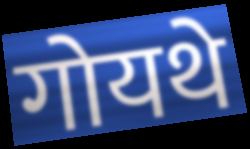
गोयथे